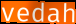
vedah